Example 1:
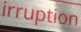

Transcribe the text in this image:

irruption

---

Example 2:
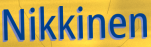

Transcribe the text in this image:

Nikkinen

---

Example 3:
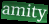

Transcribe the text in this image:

amity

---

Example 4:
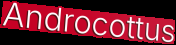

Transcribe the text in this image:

Androcottus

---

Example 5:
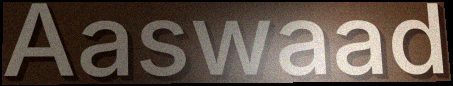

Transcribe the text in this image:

Aaswaad